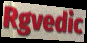
Rgvedic